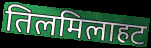
तिलमिलाहट